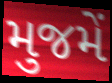
મુજમેં